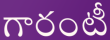
గారంటీ